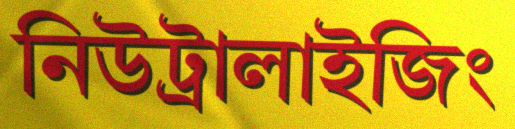
নিউট্রালাইজিং